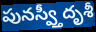
పునస్వ్తీదృశీ